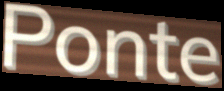
Ponte